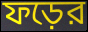
ফড়ের